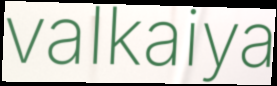
valkaiya